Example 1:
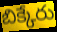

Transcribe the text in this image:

బిక్కేరు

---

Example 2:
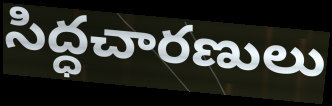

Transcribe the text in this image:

సిద్ధచారణులు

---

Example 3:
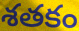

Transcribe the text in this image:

శతకం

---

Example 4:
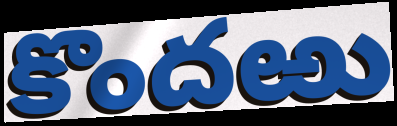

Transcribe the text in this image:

కొందఱు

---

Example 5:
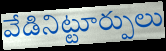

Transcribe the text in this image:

వేడినిట్టూర్పులు